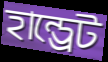
হান্ড্রেট